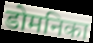
डोमनिका